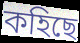
কহিছে